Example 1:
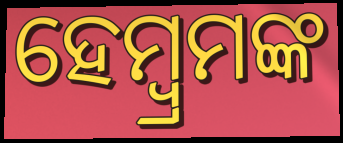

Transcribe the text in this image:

ହେମ୍ବ୍ରମଙ୍କ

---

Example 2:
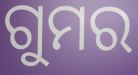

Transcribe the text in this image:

ଗୁମର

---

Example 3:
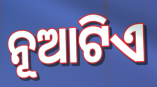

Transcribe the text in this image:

ନୂଆଟିଏ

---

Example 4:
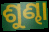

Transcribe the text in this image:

ଶୁଣ୍ଢା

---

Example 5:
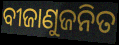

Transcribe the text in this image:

ବୀଜାଣୁଜନିତ